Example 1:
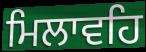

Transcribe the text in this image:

ਮਿਲਾਵਹਿ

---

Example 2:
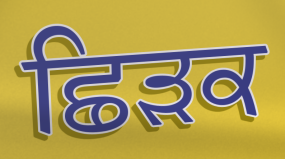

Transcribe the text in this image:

ਛਿੜਕ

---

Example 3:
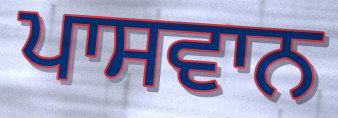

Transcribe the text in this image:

ਪਾਸਵਾਨ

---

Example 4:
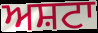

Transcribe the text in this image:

ਅਸ਼ਟਾ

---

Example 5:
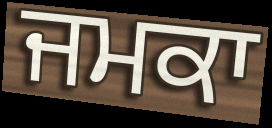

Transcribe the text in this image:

ਜਮਕਾ